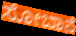
ಸೋಬಾನೆ